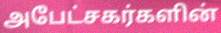
அபேட்சகர்களின்